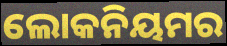
ଲୋକନିୟମର